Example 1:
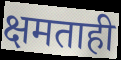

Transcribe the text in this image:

क्षमताही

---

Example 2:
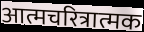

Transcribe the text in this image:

आत्मचरित्रात्मक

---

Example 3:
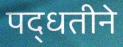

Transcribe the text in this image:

पद्धतीने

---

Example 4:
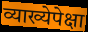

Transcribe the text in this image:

व्याख्येपेक्षा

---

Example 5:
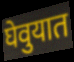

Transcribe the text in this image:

घेवुयात